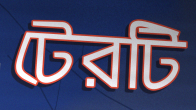
টেরটি